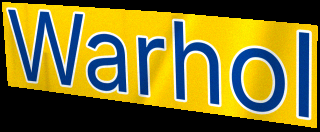
Warhol